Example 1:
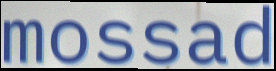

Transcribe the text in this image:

mossad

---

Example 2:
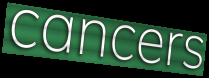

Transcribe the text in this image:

cancers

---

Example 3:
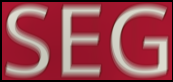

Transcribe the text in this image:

SEG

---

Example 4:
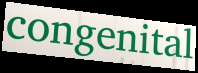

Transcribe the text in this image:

congenital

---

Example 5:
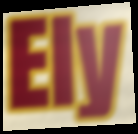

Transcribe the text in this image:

Ely